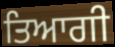
ਤਿਆਗੀ